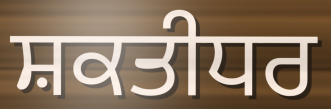
ਸ਼ਕਤੀਧਰ